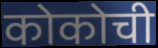
कोकोची